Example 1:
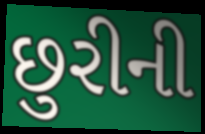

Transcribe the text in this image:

છુરીની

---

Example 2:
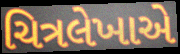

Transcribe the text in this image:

ચિત્રલેખાએ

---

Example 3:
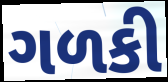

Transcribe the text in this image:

ગળકી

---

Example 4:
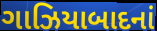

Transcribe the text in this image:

ગાઝિયાબાદનાં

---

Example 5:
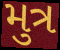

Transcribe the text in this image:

મુત્ર